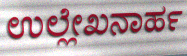
ಉಲ್ಲೇಖನಾರ್ಹ